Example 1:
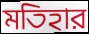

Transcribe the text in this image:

মতিহার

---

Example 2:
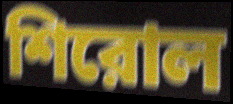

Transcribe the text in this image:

শিরোল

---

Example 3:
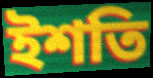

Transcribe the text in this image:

ইশতি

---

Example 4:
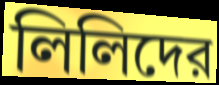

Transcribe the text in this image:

লিলিদের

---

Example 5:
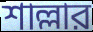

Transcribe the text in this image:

শাল্লার